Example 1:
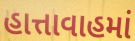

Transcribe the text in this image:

હાત્તાવાહમાં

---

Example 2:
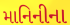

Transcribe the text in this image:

માનિનીના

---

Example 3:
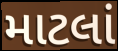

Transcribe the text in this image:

માટલાં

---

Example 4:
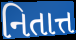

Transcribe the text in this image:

નિતાત્ત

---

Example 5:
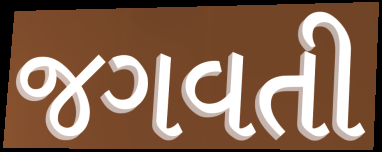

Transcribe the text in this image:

જગવતી